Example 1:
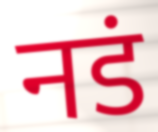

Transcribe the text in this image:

नडं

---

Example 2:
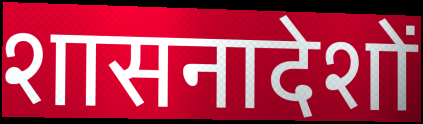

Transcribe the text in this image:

शासनादेशों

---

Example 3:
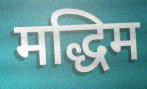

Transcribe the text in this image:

मद्धिम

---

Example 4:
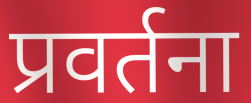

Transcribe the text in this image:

प्रवर्तना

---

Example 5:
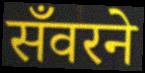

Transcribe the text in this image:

सँवरने